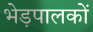
भेड़पालकों